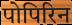
पोपिरिन